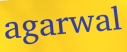
agarwal